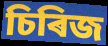
চিৰিজ